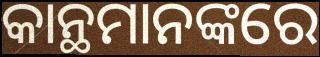
କାନ୍ଥମାନଙ୍କରେ